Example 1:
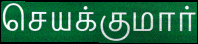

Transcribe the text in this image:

செயக்குமார்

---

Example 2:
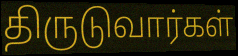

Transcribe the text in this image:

திருடுவார்கள்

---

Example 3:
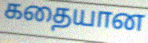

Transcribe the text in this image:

கதையான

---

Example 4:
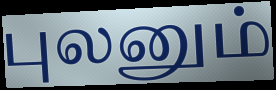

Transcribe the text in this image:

புலனும்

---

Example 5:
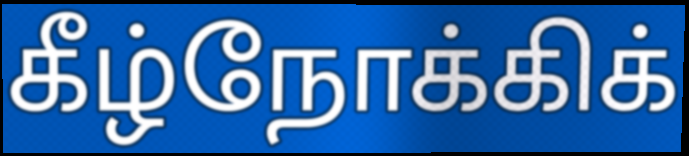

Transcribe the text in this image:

கீழ்நோக்கிக்